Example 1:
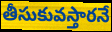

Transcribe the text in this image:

తీసుకువస్తారనే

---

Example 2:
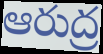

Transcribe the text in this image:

ఆరుద్ర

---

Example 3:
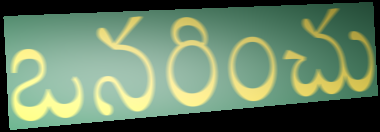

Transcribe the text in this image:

ఒనరించు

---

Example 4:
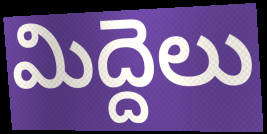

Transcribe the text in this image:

మిద్దెలు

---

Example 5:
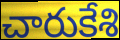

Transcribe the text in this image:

చారుకేశి